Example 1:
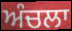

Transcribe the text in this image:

ਅੰਚਲਾ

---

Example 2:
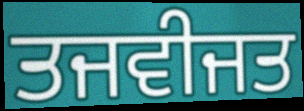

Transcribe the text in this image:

ਤਜਵੀਜਤ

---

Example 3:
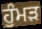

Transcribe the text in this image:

ਹੁੰਮੜ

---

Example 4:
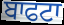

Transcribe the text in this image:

ਬਾਫਟਾ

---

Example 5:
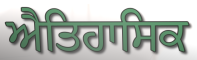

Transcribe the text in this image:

ਐਤਿਹਾਸਿਕ